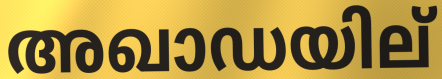
അഖാഡയില്